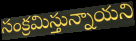
సంక్రమిస్తున్నాయని